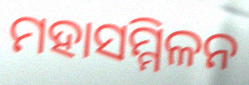
ମହାସମ୍ମିଳନ